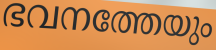
ഭവനത്തേയും